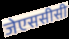
जेएससीसी